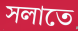
সলাতে